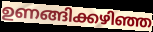
ഉണങ്ങിക്കഴിഞ്ഞ